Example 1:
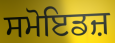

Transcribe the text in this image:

ਸਮੋਇਡਜ਼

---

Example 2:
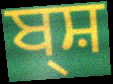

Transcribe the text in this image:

ਬ੍ਸ਼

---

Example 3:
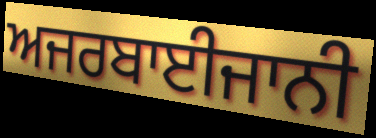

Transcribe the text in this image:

ਅਜਰਬਾਈਜਾਨੀ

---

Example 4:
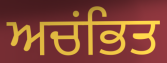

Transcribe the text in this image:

ਅਚਂਭਿਤ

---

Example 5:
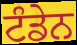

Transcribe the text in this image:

ਟੰਡੇਨ